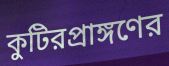
কুটিরপ্রাঙ্গণের